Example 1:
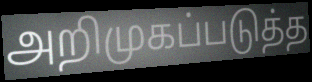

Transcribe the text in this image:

அறிமுகப்படுத்த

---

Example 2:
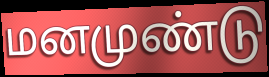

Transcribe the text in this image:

மனமுண்டு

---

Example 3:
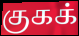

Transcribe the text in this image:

குகக்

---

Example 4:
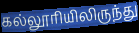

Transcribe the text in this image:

கல்லூரியிலிருந்து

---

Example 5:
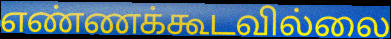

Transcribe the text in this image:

எண்ணக்கூடவில்லை